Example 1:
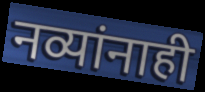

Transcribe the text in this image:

नव्यांनाही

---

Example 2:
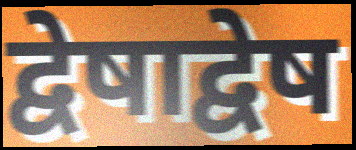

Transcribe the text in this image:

द्वेषाद्वेष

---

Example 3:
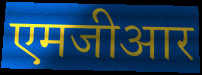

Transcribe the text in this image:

एमजीआर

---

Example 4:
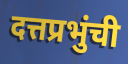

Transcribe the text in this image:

दत्तप्रभुंची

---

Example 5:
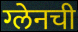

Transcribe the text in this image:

ग्लेनची